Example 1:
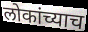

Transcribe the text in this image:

लोकांच्याच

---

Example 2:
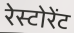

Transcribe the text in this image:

रेस्टोरेंट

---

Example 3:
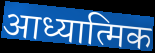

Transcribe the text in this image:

आध्यात्मिक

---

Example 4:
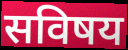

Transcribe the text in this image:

सविषय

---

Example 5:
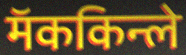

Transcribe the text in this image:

मॅककिन्ले